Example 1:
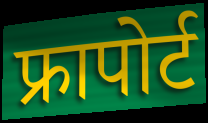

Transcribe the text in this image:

फ्रापोर्ट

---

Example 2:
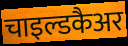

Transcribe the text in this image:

चाइल्डकैअर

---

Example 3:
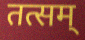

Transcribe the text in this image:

तत्सम्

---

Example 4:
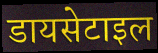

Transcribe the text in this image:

डायसेटाइल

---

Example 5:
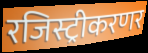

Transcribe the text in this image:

रजिस्ट्रीकरणर